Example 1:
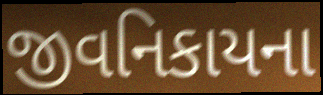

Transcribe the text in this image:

જીવનિકાયના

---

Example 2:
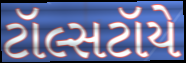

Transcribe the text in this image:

ટૉલ્સટૉયે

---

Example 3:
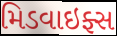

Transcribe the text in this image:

મિડવાઇફ્સ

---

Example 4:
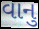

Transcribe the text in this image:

વાનુ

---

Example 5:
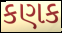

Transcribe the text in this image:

કણક